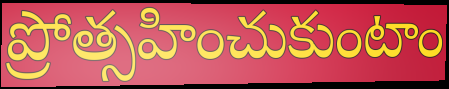
ప్రోత్సహించుకుంటాం